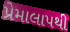
પ્રેમાલાપથી